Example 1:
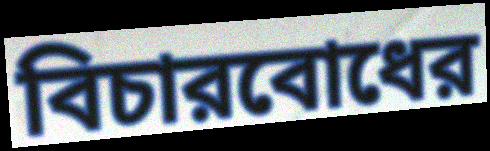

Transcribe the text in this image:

বিচারবোধের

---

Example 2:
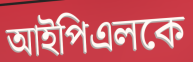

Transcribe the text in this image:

আইপিএলকে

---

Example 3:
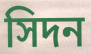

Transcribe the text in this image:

সিদন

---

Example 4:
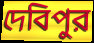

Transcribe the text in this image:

দেবিপুর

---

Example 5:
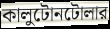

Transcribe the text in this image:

কালুটোনটোলার